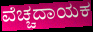
ವೆಚ್ಚದಾಯಕ